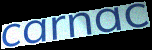
carnac